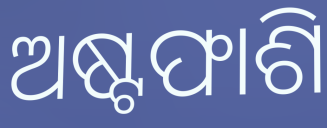
ଅଷ୍ଟଫାଶି